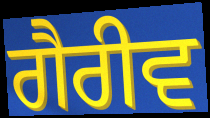
ਗੈਰੀਵ